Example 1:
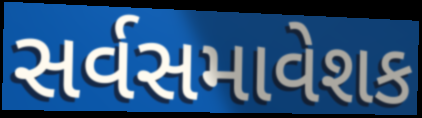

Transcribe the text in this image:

સર્વસમાવેશક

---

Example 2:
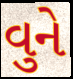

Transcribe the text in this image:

વુને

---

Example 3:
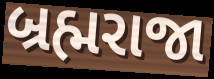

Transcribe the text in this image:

બ્રહ્મરાજા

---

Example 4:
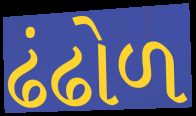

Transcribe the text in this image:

ઢંઢોળ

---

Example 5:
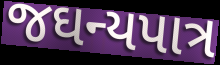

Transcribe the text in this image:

જઘન્યપાત્ર